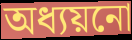
অধ্যয়নো